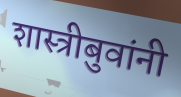
शास्त्रीबुवांनी